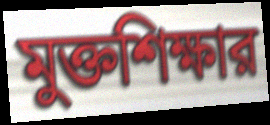
মুক্তশিক্ষার